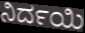
ನಿರ್ದಯಿ